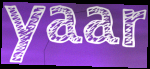
yaar